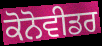
ਕੋਨੋਵੀਡਰ